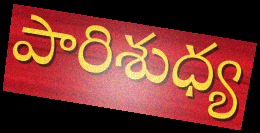
పారిశుధ్య